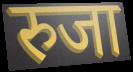
रुजा